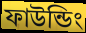
ফাউন্ডিং